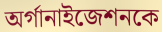
অর্গানাইজেশনকে